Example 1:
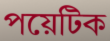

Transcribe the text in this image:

পয়েটিক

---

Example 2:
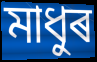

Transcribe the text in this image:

মাধুৰ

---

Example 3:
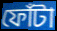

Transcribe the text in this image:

ফোঁটা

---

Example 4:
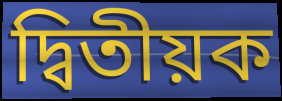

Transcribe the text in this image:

দ্বিতীয়ক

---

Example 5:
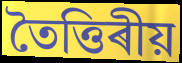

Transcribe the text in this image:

তৈত্তিৰীয়